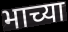
भाच्या